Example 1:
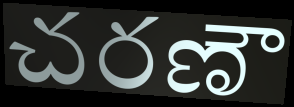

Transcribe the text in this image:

చరణౌ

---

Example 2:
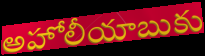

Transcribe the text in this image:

అహోలీయాబుకు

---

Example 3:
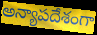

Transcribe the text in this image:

అన్యాపదేశంగా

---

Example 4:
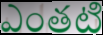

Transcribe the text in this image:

ఎంతటి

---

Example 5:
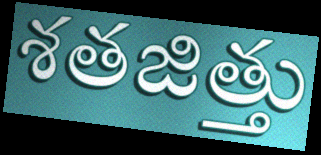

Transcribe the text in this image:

శతజిత్తు